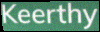
Keerthy